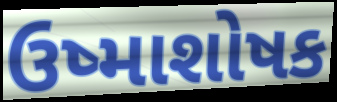
ઉષ્માશોષક